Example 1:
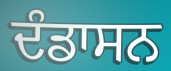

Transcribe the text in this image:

ਦੰਡਾਸਨ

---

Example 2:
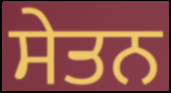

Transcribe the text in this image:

ਸੇਤਨ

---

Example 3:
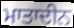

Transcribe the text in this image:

ਮਾਤਾਦੀਨ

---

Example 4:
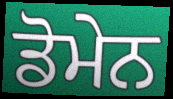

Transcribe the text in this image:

ਡੋਮੇਨ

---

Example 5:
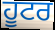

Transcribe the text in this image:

ਹੂਟਰ